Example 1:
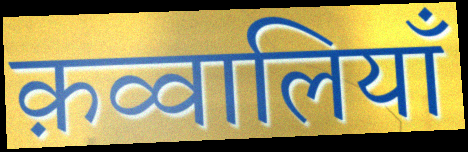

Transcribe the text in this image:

क़व्वालियाँ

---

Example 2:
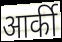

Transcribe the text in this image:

आर्की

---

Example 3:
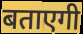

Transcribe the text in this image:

बताएगी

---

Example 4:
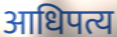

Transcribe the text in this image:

आधिपत्य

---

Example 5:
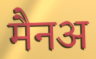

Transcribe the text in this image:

मैनअ